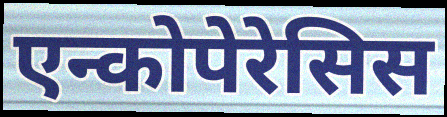
एन्कोपेरेसिस